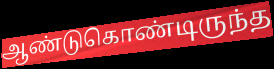
ஆண்டுகொண்டிருந்த